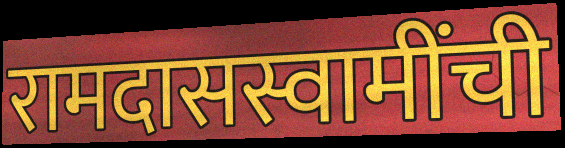
रामदासस्वामींची